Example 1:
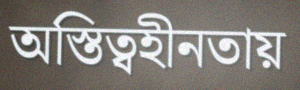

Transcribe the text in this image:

অস্তিত্বহীনতায়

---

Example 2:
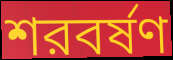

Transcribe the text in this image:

শরবর্ষণ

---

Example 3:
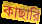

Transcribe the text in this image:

কাছারি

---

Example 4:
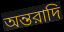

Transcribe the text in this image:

অন্তরাদি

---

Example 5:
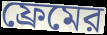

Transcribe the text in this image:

ফ্রেমের